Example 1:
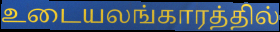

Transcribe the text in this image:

உடையலங்காரத்தில்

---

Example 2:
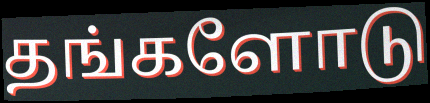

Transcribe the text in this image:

தங்களோடு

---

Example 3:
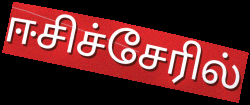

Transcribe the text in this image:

ஈசிச்சேரில்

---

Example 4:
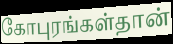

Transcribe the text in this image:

கோபுரங்கள்தான்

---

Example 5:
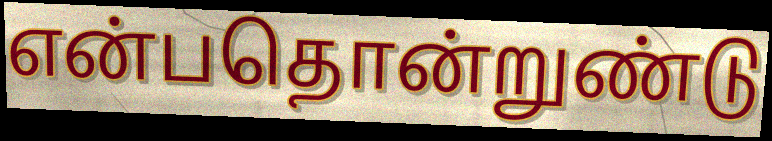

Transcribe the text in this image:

என்பதொன்றுண்டு